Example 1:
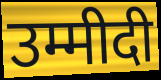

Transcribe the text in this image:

उम्मीदी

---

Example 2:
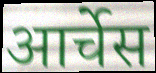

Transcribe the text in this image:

आर्चेस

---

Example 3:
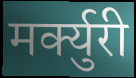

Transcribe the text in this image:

मर्क्युरी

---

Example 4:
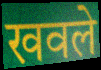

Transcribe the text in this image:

खवले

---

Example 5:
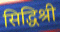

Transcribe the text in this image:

सिद्धिश्री